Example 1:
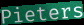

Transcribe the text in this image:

Pieters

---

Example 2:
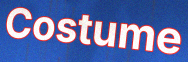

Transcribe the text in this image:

Costume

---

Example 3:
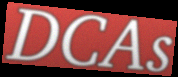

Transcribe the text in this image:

DCAs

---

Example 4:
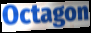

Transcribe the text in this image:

Octagon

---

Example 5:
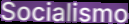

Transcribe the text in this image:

Socialismo